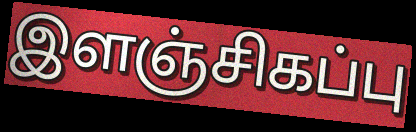
இளஞ்சிகப்பு